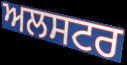
ਅਲਸਟਰ